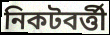
নিকটবর্ত্তী